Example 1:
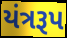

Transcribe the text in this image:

યંત્રરૂપ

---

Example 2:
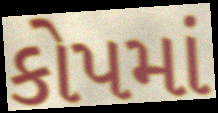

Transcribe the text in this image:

કોપમાં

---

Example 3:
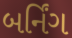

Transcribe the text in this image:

બર્નિંગ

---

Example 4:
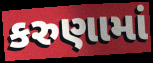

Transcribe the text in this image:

કરુણામાં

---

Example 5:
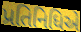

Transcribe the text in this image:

પ્રતિનિધિએ